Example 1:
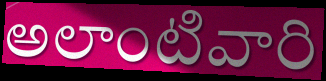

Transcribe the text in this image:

అలాంటివారి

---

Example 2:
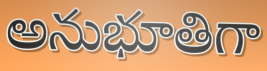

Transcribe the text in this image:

అనుభూతిగా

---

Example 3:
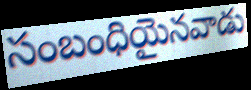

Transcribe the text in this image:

సంబంధియైనవాడు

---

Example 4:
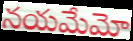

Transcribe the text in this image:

నయమేమో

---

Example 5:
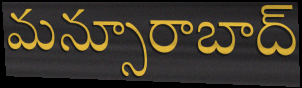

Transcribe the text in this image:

మన్సూరాబాద్